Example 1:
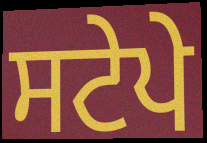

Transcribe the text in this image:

ਸਟੇਪੇ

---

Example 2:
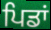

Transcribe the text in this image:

ਪਿਡਾਂ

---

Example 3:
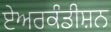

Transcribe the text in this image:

ਏਅਰਕੰਡੀਸ਼ਨ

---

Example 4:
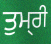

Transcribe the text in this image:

ਤੁਮ੍‍ਰੀ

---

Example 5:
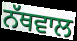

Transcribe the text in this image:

ਨੱਥਵਾਲ